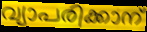
വ്യാപരിക്കാന്